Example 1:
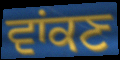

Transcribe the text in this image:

ਵਾਂਕਣ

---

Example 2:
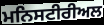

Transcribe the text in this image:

ਮਨਿਸਟੀਰੀਅਲ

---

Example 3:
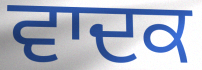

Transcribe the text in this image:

ਵਾਦਕ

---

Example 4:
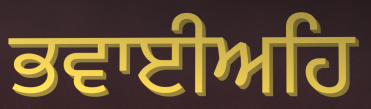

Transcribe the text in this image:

ਭਵਾਈਅਹਿ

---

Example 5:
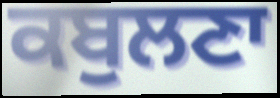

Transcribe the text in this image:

ਕਬੁਲਣਾ